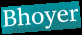
Bhoyer